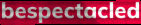
bespectacled